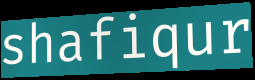
shafiqur